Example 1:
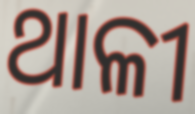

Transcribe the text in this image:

ଥାଳୀ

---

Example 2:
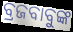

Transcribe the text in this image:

ବ୍ରଜବାବୁଙ୍କ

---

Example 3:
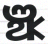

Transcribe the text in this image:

ଞ୍ଝ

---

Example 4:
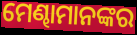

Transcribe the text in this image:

ମେଣ୍ଢାମାନଙ୍କର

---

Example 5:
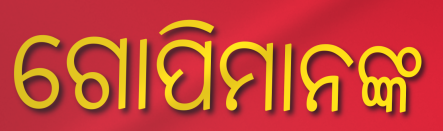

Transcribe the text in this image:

ଗୋପିମାନଙ୍କ